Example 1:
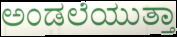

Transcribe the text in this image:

ಅಂಡಲೆಯುತ್ತಾ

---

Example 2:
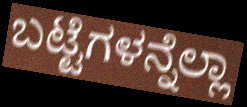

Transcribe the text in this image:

ಬಟ್ಟೆಗಳನ್ನೆಲ್ಲಾ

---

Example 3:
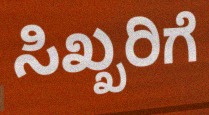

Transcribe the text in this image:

ಸಿಖ್ಖರಿಗೆ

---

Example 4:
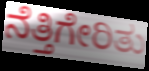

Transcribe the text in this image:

ನೆತ್ತಿಗೇರಿತು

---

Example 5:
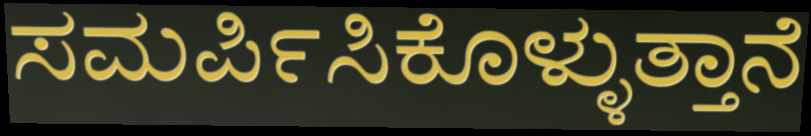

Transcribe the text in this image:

ಸಮರ್ಪಿಸಿಕೊಳ್ಳುತ್ತಾನೆ